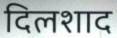
दिलशाद